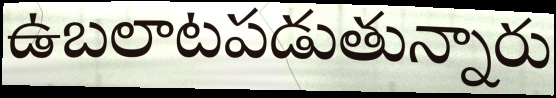
ఉబలాటపడుతున్నారు